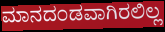
ಮಾನದಂಡವಾಗಿರಲಿಲ್ಲ